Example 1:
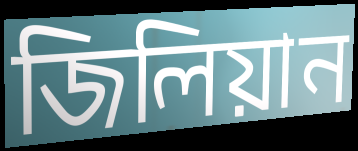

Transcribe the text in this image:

জিলিয়ান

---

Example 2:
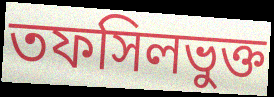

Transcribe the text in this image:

তফসিলভুক্ত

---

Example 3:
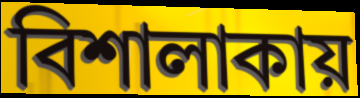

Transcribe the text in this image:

বিশালাকায়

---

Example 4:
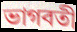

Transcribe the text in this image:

ভাগবতী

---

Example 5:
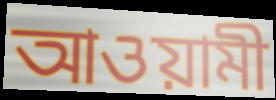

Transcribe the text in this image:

আওয়ামী